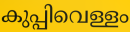
കുപ്പിവെള്ളം